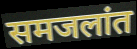
समजलांत